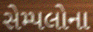
સેમ્પલોના